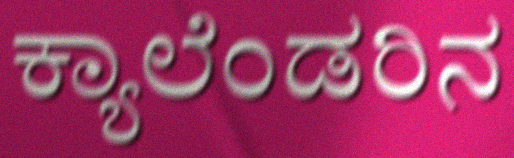
ಕ್ಯಾಲೆಂಡರಿನ